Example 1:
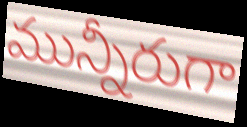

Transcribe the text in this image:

మున్నీరుగా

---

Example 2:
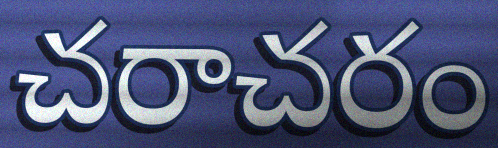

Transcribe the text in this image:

చరాచరం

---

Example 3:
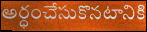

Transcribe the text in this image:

అర్ధంచేసుకొనటానికి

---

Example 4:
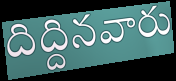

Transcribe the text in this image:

దిద్దినవారు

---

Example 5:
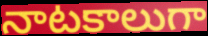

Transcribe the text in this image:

నాటకాలుగా